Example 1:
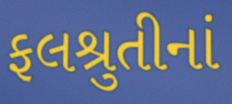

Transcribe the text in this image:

ફલશ્રુતીનાં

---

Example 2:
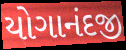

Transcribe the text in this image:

યોગાનંદજી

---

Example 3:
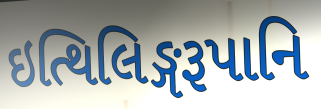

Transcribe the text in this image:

ઇત્થિલિઙ્ગરૂપાનિ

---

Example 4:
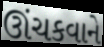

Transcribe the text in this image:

ઊંચકવાને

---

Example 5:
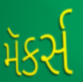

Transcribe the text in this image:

મૅકર્સ